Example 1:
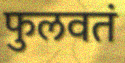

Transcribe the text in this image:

फुलवतं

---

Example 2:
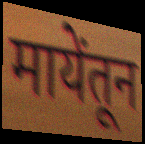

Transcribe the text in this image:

मायेंतून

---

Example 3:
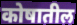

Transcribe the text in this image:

कोषातील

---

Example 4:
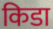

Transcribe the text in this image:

किडा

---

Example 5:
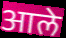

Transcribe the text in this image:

आले